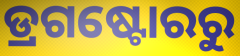
ଡ୍ରଗଷ୍ଟୋରରୁ